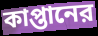
কাপ্তানের